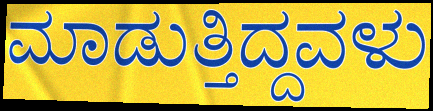
ಮಾಡುತ್ತಿದ್ದವಳು